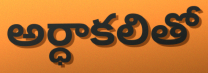
అర్ధాకలితో